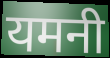
यमनी